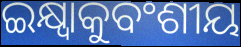
ଇକ୍ଷ୍ୱାକୁବଂଶୀୟ